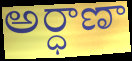
అర్ధాణా